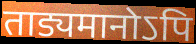
ताड्यमानोऽपि